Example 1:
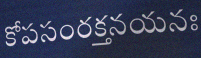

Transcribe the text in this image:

కోపసంరక్తనయనః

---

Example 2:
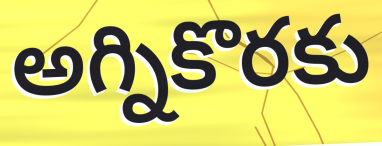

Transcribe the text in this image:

అగ్నికొరకు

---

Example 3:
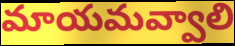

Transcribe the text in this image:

మాయమవ్వాలి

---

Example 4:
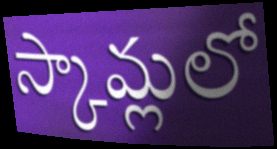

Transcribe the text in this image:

స్కామ్లలో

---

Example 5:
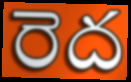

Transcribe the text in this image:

రెద